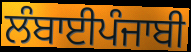
ਲੰਬਾਈਪੰਜਾਬੀ